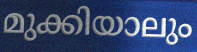
മുക്കിയാലും